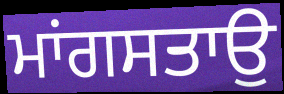
ਮਾਂਗਸਤਾਉ